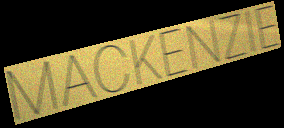
MACKENZIE